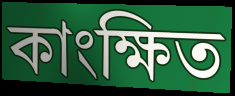
কাংক্ষিত